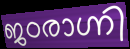
ജഠരാഗ്നി